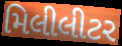
મિલીલીટર